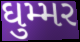
ઘુમ્મર